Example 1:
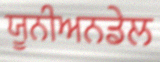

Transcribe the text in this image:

ਯੂਨੀਅਨਡੇਲ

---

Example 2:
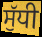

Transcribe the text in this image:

ਸੁੱਧੀ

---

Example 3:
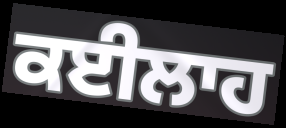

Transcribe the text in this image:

ਕਈਲਾਹ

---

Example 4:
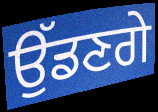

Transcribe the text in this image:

ਉੱਡਣਗੇ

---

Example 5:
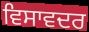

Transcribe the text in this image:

ਵਿਸਾਵਦਰ